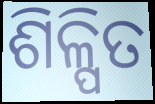
ଶିଳ୍ପିତ